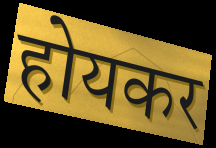
होयकर